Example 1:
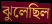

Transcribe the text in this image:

ঝুলেছিল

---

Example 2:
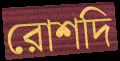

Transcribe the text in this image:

রোশদি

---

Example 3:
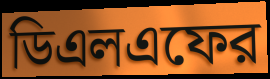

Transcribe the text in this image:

ডিএলএফের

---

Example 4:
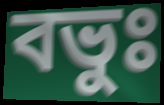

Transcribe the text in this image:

বভুঃ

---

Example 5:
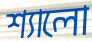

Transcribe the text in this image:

শ্যালো